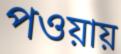
পওয়ায়